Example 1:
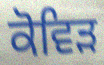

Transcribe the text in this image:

ਕੋਵਿਡ਼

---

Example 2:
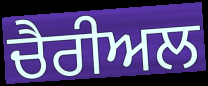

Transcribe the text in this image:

ਚੈਰੀਅਲ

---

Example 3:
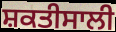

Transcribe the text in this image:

ਸ਼ਕਤੀਸਾਲੀ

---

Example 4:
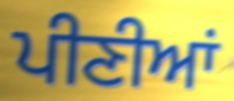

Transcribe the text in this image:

ਪੀਣੀਆਂ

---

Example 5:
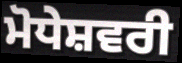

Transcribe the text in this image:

ਮੋਧੇਸ਼ਵਰੀ